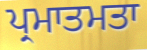
ਪ੍ਰਮਾਤਮਤਾ